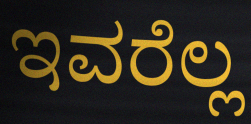
ಇವರೆಲ್ಲ